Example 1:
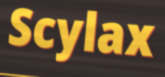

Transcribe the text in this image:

Scylax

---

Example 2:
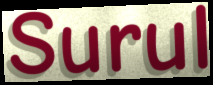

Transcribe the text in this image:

Surul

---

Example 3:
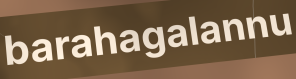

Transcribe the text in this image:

barahagalannu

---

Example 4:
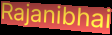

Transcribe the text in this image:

Rajanibhai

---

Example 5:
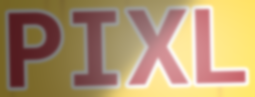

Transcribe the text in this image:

PIXL